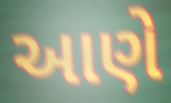
આણે